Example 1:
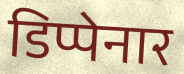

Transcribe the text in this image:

डिप्पेनार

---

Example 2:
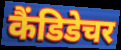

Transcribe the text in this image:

कैंडिडेचर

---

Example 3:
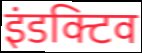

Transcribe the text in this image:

इंडक्टिव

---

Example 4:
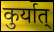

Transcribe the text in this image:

कुर्यात्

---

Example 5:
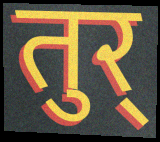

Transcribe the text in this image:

तुर्